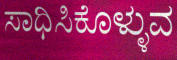
ಸಾಧಿಸಿಕೊಳ್ಳುವ